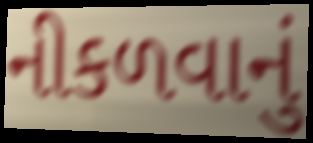
નીકળવાનું